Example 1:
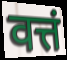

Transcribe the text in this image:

वत्तं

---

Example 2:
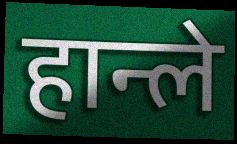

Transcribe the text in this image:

हान्ले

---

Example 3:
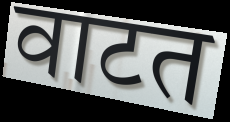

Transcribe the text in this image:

वाटत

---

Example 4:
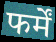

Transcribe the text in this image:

फर्में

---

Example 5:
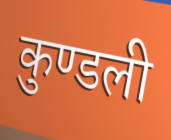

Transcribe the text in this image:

कुण्डली